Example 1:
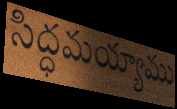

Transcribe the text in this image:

సిద్ధమయ్యాము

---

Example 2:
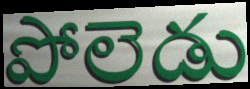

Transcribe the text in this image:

పోలెడు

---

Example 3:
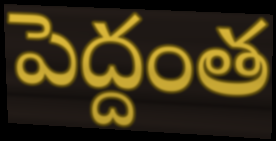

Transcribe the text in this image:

పెద్దంత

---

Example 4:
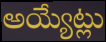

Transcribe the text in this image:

అయ్యేట్లు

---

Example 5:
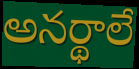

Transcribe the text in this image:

అనర్థాలే